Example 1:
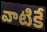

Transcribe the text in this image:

వాటికే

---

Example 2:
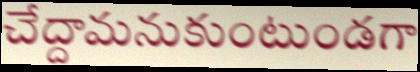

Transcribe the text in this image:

చేద్దామనుకుంటుండగా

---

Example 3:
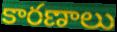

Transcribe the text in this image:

కారణాలు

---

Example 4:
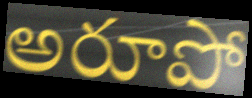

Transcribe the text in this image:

అరూపో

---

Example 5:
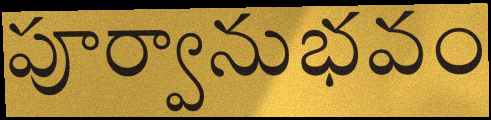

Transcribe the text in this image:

పూర్వానుభవం